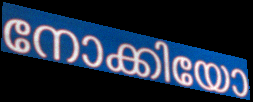
നോക്കിയോ